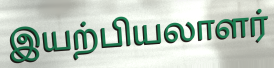
இயற்பியலாளர்